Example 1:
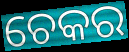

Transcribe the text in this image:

ଚେକର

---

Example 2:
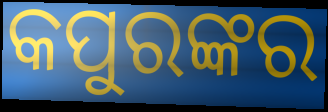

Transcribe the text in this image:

କପୁରଙ୍କର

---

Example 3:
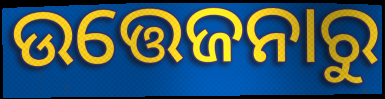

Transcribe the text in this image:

ଉତ୍ତେଜନାରୁ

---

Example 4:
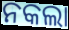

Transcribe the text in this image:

ନକଲା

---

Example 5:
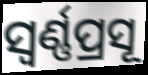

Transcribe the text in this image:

ସ୍ୱର୍ଣ୍ଣପ୍ରସୂ